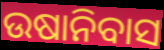
ଉଷାନିବାସ